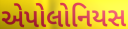
એપોલોનિયસ